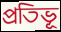
প্রতিভূ